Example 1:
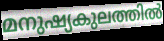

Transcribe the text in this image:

മനുഷ്യകുലത്തിൽ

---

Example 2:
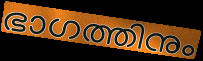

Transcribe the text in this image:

ഭാഗത്തിനും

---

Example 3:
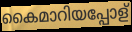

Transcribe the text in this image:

കൈമാറിയപ്പോള്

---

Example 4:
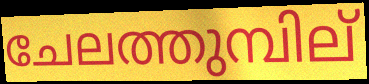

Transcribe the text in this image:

ചേലത്തുമ്പില്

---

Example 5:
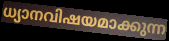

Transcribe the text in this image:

ധ്യാനവിഷയമാക്കുന്ന